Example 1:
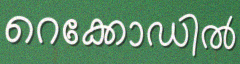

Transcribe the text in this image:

റെക്കോഡിൽ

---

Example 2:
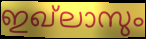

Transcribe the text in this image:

ഇഖ്‌ലാസും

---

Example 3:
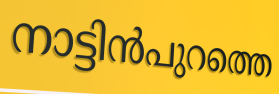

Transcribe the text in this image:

നാട്ടിൻപുറത്തെ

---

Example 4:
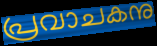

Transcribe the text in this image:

പ്രവാചകനു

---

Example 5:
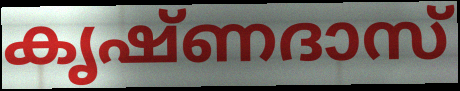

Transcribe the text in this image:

കൃഷ്ണദാസ്